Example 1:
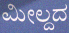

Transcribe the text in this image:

ಮೀಲ್ದದ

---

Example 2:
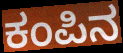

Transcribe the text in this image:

ಕಂಪಿನ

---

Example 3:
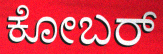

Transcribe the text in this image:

ಕೋಬರ್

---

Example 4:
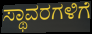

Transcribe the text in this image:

ಸ್ಥಾವರಗಳಿಗೆ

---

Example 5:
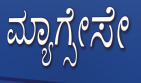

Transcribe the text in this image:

ಮ್ಯಾಗ್ಸೇಸೇ